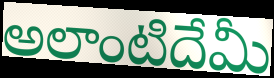
అలాంటిదేమీ